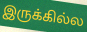
இருக்கில்ல